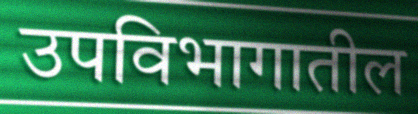
उपविभागातील